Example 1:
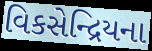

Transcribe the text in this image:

વિકસેન્દ્રિયના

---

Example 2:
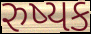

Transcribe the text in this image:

રુષ્યક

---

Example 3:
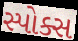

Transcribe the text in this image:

સ્પોક્સ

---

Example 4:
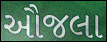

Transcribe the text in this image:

ઔજલા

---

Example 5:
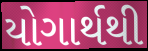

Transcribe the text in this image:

યોગાર્થથી